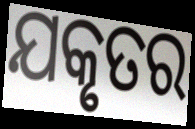
ଯକୃତର